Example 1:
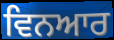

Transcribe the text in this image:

ਵਿਨਆਰ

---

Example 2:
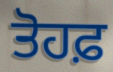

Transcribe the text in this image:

ਤੋਹਫ਼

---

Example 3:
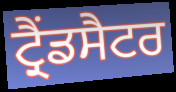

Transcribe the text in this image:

ਟ੍ਰੈਂਡਸੈਟਰ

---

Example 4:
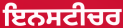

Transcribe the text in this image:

ਇਨਸਟੀਚਰ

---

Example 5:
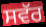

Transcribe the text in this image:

ਸਵੱਰ